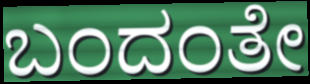
ಬಂದಂತೇ